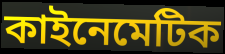
কাইনেমেটিক